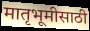
मातृभूमीसाठी